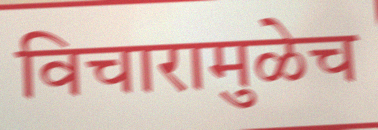
विचारामुळेच